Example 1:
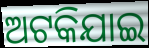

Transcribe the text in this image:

ଅଟକିଯାଇ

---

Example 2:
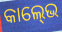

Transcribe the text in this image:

କାଲ୍‍ଭେ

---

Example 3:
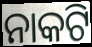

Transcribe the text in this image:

ନାକଟି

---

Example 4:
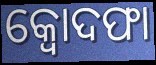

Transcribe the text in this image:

କ୍ବୋଦଫା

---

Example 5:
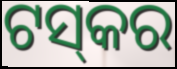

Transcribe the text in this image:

ଟସ୍‍କର